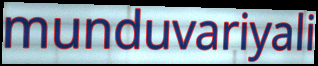
munduvariyali